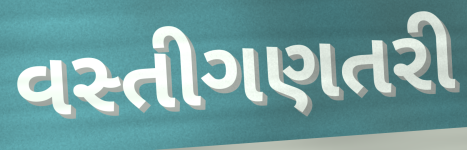
વસ્તીગણતરી